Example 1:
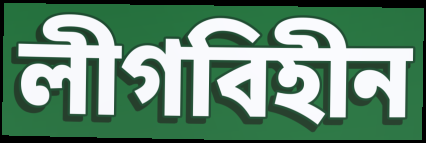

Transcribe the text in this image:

লীগবিহীন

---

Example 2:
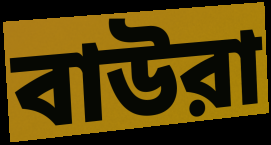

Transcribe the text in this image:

বাউরা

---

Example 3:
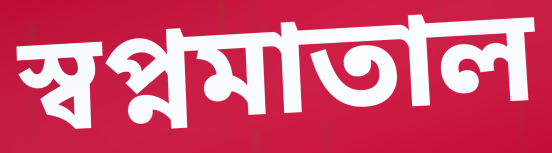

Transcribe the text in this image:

স্বপ্নমাতাল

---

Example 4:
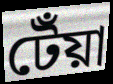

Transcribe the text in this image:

টেঁয়া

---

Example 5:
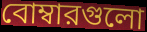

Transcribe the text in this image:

বোম্বারগুলো